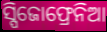
ସ୍ପିଜୋଫ୍ରେନିଆ